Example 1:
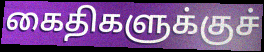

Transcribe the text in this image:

கைதிகளுக்குச்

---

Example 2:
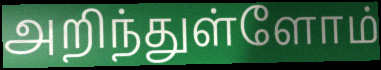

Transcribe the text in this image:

அறிந்துள்ளோம்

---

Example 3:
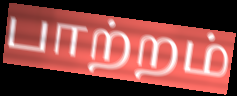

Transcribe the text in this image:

பாற்றம்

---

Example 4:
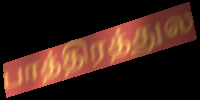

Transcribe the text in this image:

பாத்திரத்துல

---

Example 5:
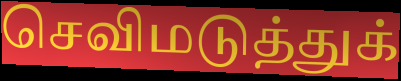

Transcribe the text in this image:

செவிமடுத்துக்